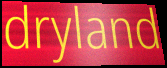
dryland